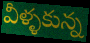
వీళ్ళకున్న